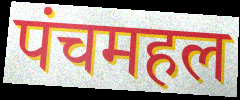
पंचमहल